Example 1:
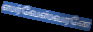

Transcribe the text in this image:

ஸர்வேஸ்வரனே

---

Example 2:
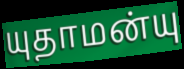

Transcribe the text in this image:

யுதாமன்யு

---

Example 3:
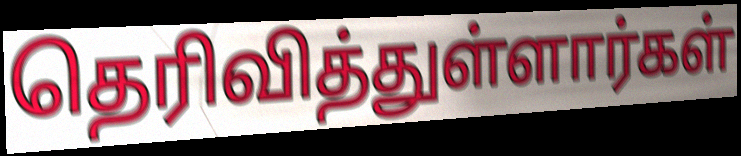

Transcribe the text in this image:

தெரிவித்துள்ளார்கள்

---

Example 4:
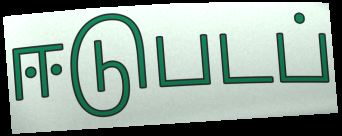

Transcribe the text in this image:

ஈடுபடப்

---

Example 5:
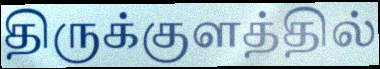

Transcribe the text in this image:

திருக்குளத்தில்